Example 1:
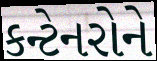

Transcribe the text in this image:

કન્ટેનરોને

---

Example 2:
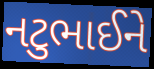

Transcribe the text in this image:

નટુભાઈને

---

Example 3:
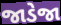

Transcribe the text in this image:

જાડેજા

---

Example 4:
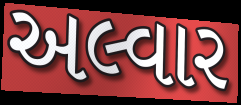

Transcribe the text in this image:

અલ્વાર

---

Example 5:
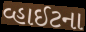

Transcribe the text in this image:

વ્હાઈટના